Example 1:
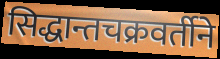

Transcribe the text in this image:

सिद्धान्तचक्रवर्तीने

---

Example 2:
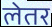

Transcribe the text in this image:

लेतर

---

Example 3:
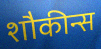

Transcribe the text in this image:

शौकीन्स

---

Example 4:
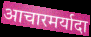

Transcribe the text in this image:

आचारमर्यादा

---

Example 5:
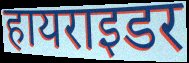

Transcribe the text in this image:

हायराइडर